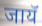
जायॅ